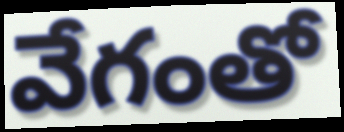
వేగంతో